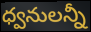
ధ్వనులన్నీ